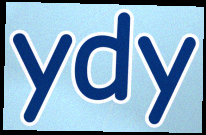
ydy